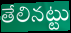
తేలినట్టు